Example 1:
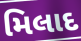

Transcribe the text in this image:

મિલાદ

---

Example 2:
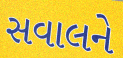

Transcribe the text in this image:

સવાલને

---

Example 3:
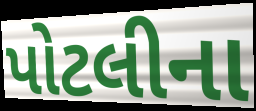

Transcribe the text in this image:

પોટલીના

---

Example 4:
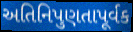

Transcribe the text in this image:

અતિનિપુણતાપૂર્વક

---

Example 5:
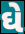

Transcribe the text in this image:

ઘે